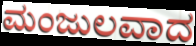
ಮಂಜುಲವಾದ